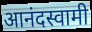
आनंदस्वामी